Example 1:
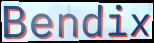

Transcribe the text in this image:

Bendix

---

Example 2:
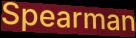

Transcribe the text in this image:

Spearman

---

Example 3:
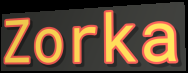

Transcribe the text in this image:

Zorka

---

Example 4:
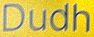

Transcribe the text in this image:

Dudh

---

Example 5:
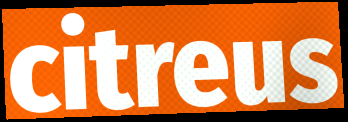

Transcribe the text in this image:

citreus